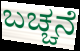
ಬಚ್ಚನೆ